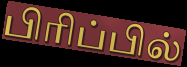
பிரிப்பில்